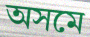
অসমে